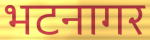
भटनागर